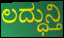
ಲದ್ಧುನ್ತಿ